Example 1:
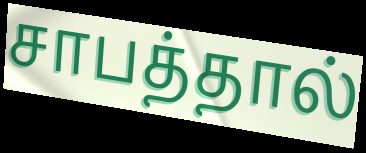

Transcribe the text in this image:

சாபத்தால்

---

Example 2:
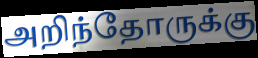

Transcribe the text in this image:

அறிந்தோருக்கு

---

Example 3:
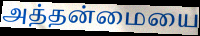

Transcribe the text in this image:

அத்தன்மையை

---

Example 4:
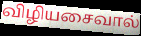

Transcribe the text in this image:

விழியசைவால்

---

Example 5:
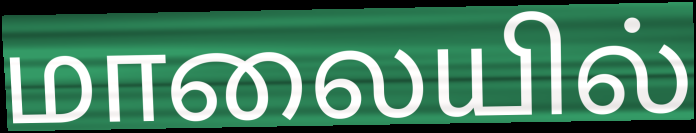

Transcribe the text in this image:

மாலையில்